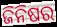
ଜିନିଷର